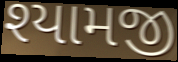
શ્યામજી